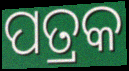
ପତ୍ରକ